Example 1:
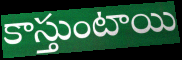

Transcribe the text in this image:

కాస్తుంటాయి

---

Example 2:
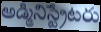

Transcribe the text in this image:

అడ్మినిస్ట్రేటరు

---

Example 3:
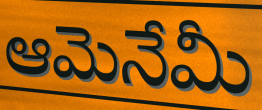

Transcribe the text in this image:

ఆమెనేమీ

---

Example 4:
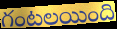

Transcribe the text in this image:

గంటలయింది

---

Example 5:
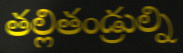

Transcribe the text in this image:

తల్లితండ్రుల్ని